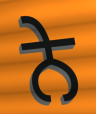
ਨੇ